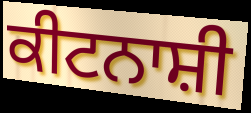
ਕੀਟਨਾਸ਼ੀ